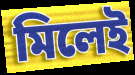
মিলেই